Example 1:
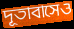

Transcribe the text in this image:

দূতাবাসেও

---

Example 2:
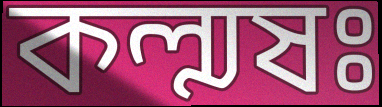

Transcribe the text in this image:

কল্মষঃ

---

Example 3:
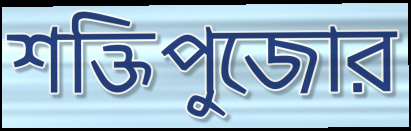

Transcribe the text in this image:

শক্তিপুজোর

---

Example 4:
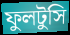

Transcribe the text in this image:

ফুলটুসি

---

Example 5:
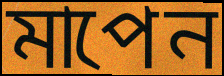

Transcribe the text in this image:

মাপেন